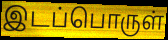
இடப்பொருள்